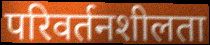
परिवर्तनशीलता